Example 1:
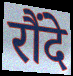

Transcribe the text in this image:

रौंदे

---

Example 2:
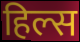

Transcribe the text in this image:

हिल्स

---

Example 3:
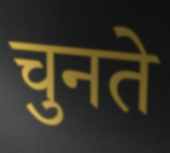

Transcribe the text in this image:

चुनते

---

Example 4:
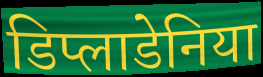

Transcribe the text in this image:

डिप्लाडेनिया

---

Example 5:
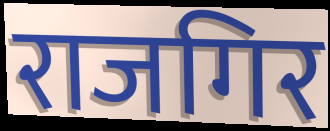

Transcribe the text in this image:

राजगिर